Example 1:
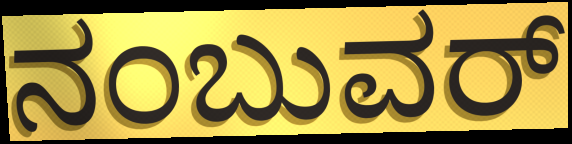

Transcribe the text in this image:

ನಂಬುವರ್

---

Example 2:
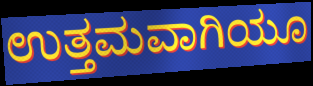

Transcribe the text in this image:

ಉತ್ತಮವಾಗಿಯೂ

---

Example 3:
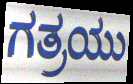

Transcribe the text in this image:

ಗತ್ರಯು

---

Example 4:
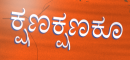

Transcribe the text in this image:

ಕ್ಷಣಕ್ಷಣಕೂ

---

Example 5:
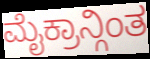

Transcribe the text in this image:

ಮೈಕ್ರಾನ್ಗಿಂತ